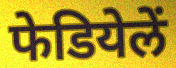
फेडियेलें